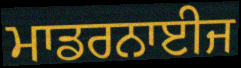
ਮਾਡਰਨਾਈਜ